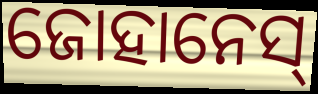
ଜୋହାନେସ୍